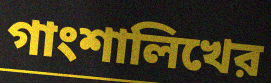
গাংশালিখের